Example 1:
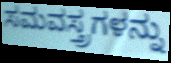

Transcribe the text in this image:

ಸಮವಸ್ತ್ರಗಳನ್ನು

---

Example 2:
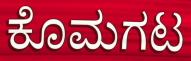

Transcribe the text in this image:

ಕೊಮಗಟ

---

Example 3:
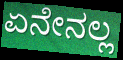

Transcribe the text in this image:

ಏನೇನಲ್ಲ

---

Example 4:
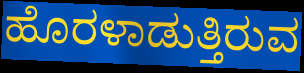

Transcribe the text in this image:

ಹೊರಳಾಡುತ್ತಿರುವ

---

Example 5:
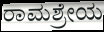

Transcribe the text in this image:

ರಾಮಶ್ರೇಯ